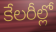
కేలరీల్లో